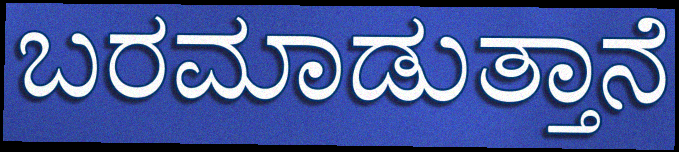
ಬರಮಾಡುತ್ತಾನೆ